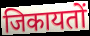
जिकायतों